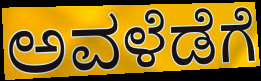
ಅವಳೆಡೆಗೆ